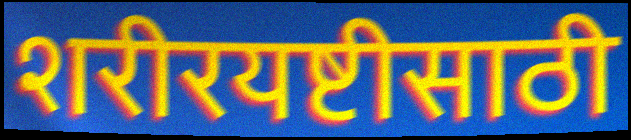
शरीरयष्टीसाठी